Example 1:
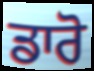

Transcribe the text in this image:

ਡਾਰੋ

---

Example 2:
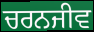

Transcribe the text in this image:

ਚਰਨਜੀਵ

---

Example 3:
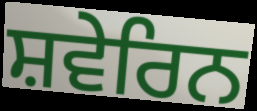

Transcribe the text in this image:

ਸ਼ਵੇਰਿਨ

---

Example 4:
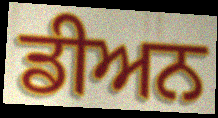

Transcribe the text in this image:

ਡੀਅਨ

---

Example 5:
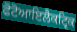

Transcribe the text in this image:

ਫੋਟੋਆਇਲੈਕਟ੍ਰਿਕ